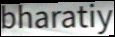
bharatiy